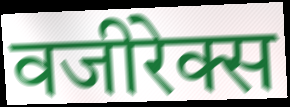
वजीरेक्स